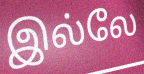
இல்லே